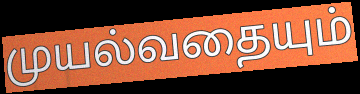
முயல்வதையும்